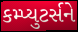
કમ્પ્યુટર્સને